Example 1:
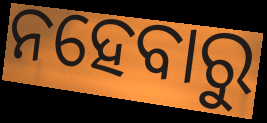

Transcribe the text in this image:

ନହେବାରୁ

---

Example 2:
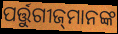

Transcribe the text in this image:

ପର୍ତ୍ତୁଗୀଜ୍‌ମାନଙ୍କ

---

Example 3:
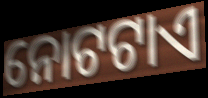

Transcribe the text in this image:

ନୋଟଟାଏ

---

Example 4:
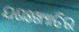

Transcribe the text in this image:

ଯଶଃଖ୍ୟାତିର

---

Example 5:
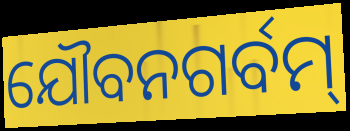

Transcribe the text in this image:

ଯୌବନଗର୍ବମ୍